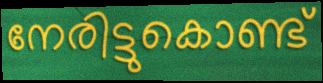
നേരിട്ടുകൊണ്ട്